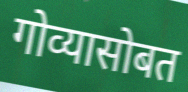
गोव्यासोबत